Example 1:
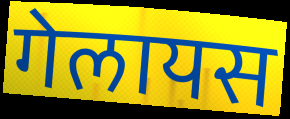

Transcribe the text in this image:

गेलायस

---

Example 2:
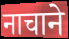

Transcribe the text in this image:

नाचाने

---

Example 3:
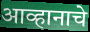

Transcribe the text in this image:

आव्हानाचे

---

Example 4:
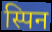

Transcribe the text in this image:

स्पिन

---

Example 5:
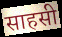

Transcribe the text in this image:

साहसी